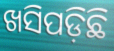
ଖସିପଡ଼ିଛି